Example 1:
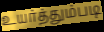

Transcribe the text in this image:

உயர்த்தும்படி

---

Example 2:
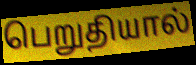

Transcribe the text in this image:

பெறுதியால்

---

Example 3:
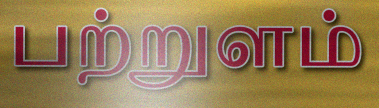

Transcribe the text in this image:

பற்றுளம்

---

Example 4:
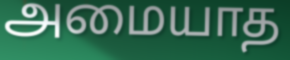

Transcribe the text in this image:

அமையாத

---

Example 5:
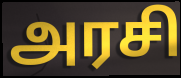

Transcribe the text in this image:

அரசி